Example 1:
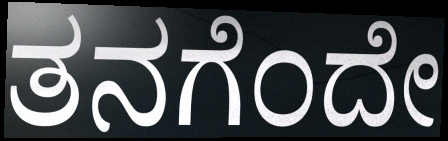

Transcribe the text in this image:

ತನಗೆಂದೇ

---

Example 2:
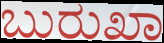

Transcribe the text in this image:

ಬುರುಖಾ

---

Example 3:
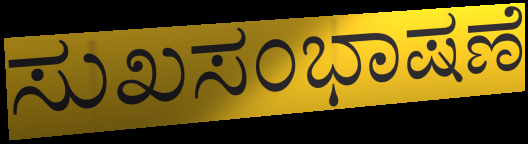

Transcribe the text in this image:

ಸುಖಸಂಭಾಷಣೆ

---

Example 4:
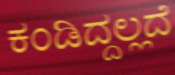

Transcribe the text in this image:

ಕಂಡಿದ್ದಲ್ಲದೆ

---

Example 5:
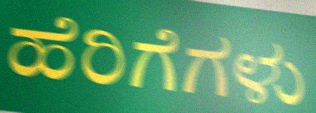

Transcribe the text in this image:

ಹೆರಿಗೆಗಳು